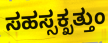
ಸಹಸ್ಸಕ್ಖತ್ತುಂ